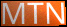
MTN